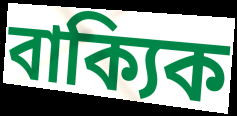
বাক্যিক